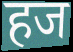
हज